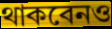
থাকবেনও